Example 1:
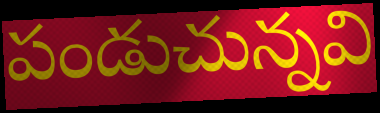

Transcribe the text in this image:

పండుచున్నవి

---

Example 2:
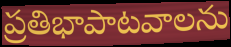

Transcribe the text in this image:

ప్రతిభాపాటవాలను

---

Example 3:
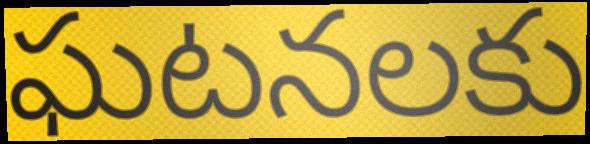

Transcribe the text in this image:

ఘటనలకు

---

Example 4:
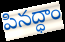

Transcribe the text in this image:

పినద్ధాం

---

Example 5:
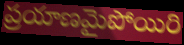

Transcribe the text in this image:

ప్రయాణమైపోయిరి